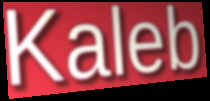
Kaleb